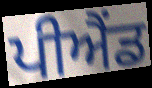
ਪੀਐਂਡ